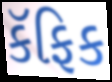
કૅફિક